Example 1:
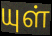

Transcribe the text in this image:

யுள்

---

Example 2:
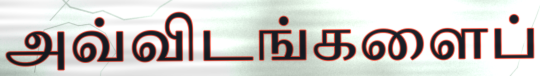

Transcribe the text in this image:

அவ்விடங்களைப்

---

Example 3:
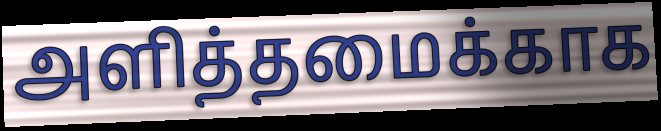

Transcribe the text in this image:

அளித்தமைக்காக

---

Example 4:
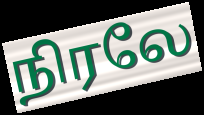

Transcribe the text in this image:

நிரலே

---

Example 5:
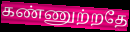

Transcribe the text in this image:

கண்ணுற்றதே